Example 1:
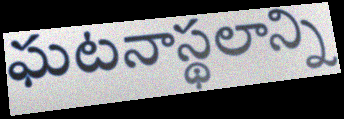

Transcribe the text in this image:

ఘటనాస్థలాన్ని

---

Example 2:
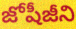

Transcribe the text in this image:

జోషీజీని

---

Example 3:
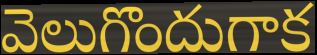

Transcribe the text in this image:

వెలుగొందుగాక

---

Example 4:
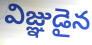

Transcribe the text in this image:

విజ్ఞుడైన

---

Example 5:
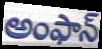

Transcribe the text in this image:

అంఫాన్